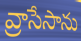
వ్రాసేసాను